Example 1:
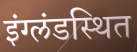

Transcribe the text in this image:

इंग्लंडस्थित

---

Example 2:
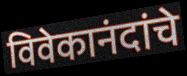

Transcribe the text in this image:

विवेकानंदांचे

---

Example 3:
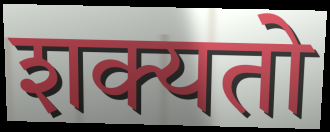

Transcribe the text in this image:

शक्यतो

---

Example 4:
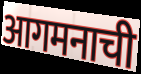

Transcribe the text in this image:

आगमनाची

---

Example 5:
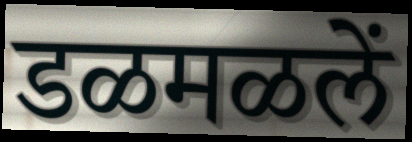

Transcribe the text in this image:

डळमळलें